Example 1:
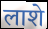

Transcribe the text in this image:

लाशे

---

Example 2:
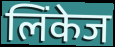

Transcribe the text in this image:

लिंकेज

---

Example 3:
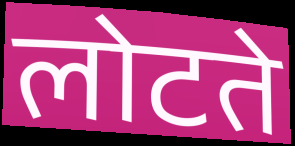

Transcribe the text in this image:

लोटते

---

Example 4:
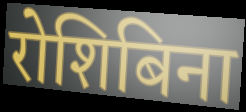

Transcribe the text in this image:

रोशिबिना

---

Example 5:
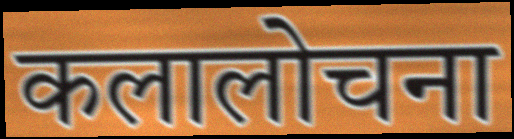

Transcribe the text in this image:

कलालोचना